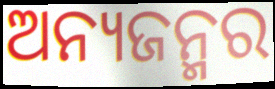
ଅନ୍ୟଜନ୍ମର